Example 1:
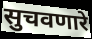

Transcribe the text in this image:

सुचवणारे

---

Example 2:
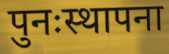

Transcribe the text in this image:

पुनःस्थापना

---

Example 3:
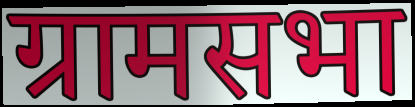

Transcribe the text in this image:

ग्रामसभा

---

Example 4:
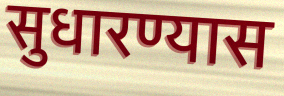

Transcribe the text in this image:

सुधारण्यास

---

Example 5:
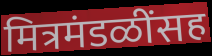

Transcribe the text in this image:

मित्रमंडळींसह